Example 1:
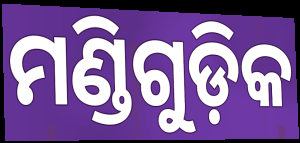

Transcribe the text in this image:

ମଣ୍ଡିଗୁଡ଼ିକ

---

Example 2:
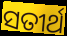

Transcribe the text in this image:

ସତୀର୍ଥ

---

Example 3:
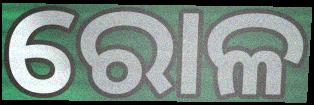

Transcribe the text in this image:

ରୋଳ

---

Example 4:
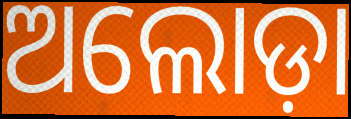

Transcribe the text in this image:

ଅଲୋଡ଼ା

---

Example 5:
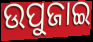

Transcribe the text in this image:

ଉପୁଜାଇ